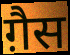
ग़ैस